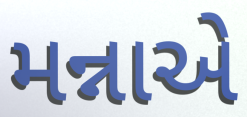
મન્નાએ